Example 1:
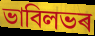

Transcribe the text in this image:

ভাবিলভৰ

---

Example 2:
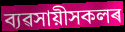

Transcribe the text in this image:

ব্যৱসায়ীসকলৰ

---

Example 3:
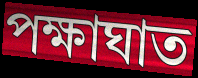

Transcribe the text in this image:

পক্ষাঘাত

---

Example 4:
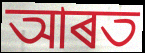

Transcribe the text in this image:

আৰত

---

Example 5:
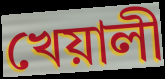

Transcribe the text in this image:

খেয়ালী